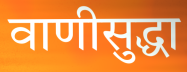
वाणीसुद्धा